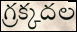
గ్రక్కదల